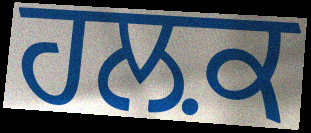
ਹਲ਼ਕ